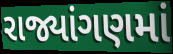
રાજ્યાંગણમાં